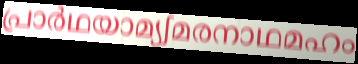
പ്രാർഥയാമ്യഽമരനാഥമഹം